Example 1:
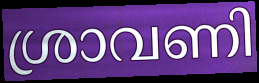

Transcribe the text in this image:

ശ്രാവണി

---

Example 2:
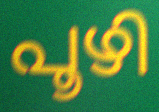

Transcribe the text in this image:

പൂഴി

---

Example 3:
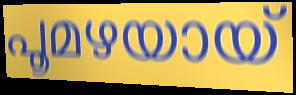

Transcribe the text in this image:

പൂമഴയായ്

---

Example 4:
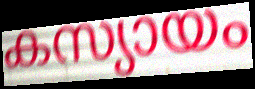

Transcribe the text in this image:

കസ്യായം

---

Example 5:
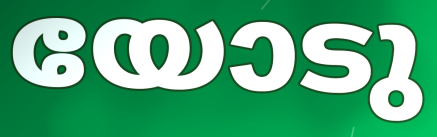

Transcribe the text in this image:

യോടു